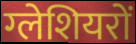
ग्‍लेशियरों